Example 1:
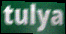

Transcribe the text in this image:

tulya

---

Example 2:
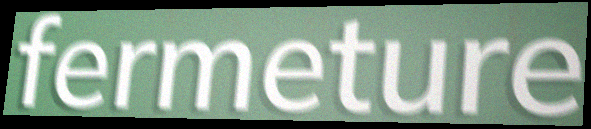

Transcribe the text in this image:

fermeture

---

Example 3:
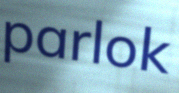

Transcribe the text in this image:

parlok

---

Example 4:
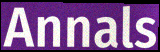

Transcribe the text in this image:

Annals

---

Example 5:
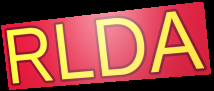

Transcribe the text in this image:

RLDA